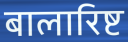
बालारिष्ट